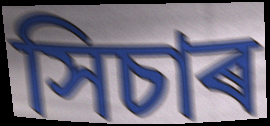
সিচাৰ